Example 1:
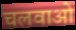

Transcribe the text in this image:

चलवाओ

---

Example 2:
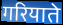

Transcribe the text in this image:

गरियाते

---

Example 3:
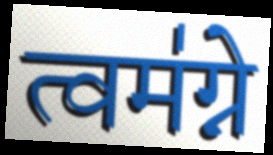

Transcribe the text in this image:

त्वम॑ग्ने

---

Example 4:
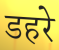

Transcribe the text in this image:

डहरे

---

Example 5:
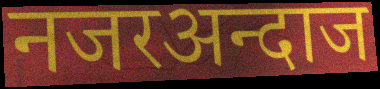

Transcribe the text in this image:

नजरअन्दाज